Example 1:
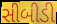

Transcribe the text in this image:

સીબીડી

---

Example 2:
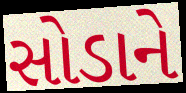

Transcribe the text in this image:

સોડાને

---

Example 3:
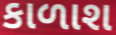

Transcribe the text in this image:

કાળાશ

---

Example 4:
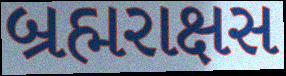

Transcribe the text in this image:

બ્રહ્મરાક્ષસ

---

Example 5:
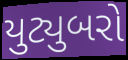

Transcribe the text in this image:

યુટ્યુબરો